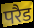
परैड